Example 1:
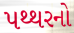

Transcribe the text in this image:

પથ્થરનો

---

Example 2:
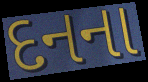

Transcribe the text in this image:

દનના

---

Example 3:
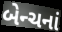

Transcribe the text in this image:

બેન્ચનાં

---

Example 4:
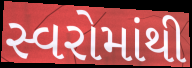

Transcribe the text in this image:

સ્વરોમાંથી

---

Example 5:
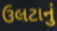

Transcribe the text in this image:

ઉલટાનું